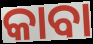
କାବା